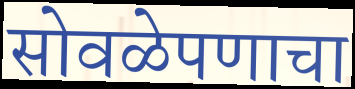
सोवळेपणाचा